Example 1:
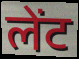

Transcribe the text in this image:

लेंट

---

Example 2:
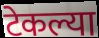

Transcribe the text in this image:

टेकल्या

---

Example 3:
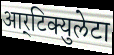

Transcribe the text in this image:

आर्टिक्युलेटा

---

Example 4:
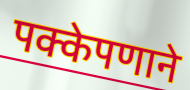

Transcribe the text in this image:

पक्केपणाने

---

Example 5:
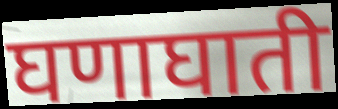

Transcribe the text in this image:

घणाघाती